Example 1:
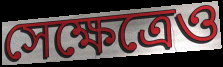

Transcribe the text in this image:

সেক্ষেত্রেও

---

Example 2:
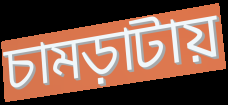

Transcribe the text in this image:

চামড়াটায়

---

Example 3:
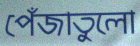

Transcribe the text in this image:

পেঁজাতুলো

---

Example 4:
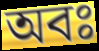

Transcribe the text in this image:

অবঃ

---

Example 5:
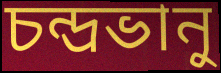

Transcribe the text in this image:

চন্দ্রভানু